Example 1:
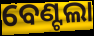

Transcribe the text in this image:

ବେଣ୍ଟଲା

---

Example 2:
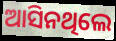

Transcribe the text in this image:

ଆସିନଥିଲେ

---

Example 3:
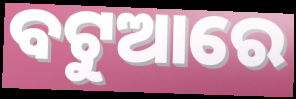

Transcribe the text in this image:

ବଟୁଆରେ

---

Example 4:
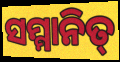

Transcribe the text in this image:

ସମ୍ମାନିତ୍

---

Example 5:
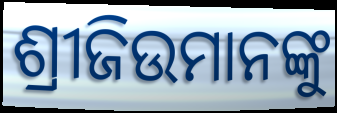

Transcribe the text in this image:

ଶ୍ରୀଜିଉମାନଙ୍କୁ